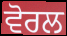
ਵੋਰਲ